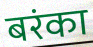
बरंका